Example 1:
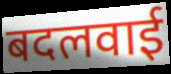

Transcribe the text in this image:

बदलवाई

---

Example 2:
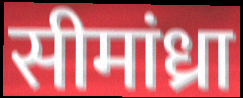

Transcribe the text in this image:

सीमांध्रा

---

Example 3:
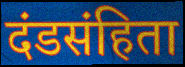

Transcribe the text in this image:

दंडसंहिता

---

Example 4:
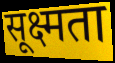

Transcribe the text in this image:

सूक्ष्मता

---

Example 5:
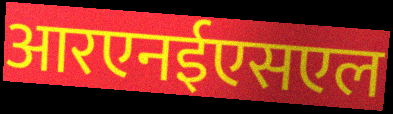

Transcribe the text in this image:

आरएनईएसएल